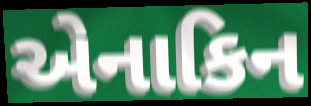
એનાકિન